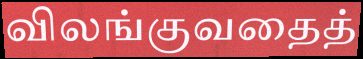
விலங்குவதைத்